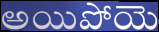
అయిపోయె